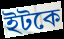
ইটকে